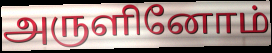
அருளினோம்